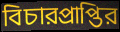
বিচারপ্রাপ্তির